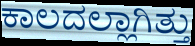
ಕಾಲದಲ್ಲಾಗಿತ್ತು